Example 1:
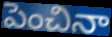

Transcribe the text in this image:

పెంచినా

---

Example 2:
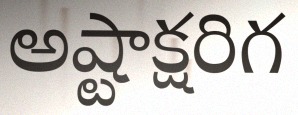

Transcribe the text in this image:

అష్టాక్షరిగ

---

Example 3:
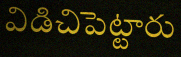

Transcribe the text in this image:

విడిచిపెట్టారు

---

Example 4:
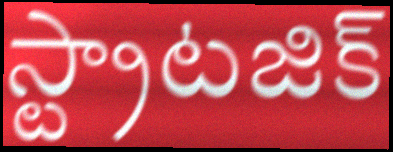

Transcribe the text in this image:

స్ట్రాటజిక్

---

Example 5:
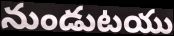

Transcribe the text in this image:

నుండుటయు